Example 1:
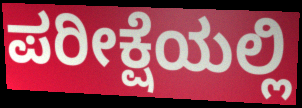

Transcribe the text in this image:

ಪರೀಕ್ಷೆಯಲ್ಲಿ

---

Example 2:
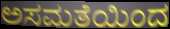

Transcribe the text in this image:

ಅಸಮತೆಯಿಂದ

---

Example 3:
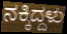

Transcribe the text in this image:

ನಕ್ಕಿದ್ದಳು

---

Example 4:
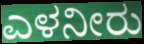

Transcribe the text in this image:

ಎಳನೀರು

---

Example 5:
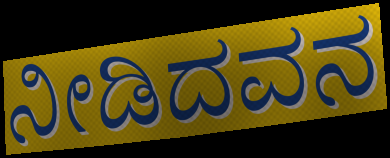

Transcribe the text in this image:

ನೀಡಿದವನ